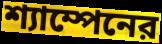
শ্যাম্পেনের